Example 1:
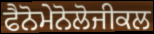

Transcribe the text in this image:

ਫੈਨੋਮੇਨੋਲੋਜੀਕਲ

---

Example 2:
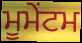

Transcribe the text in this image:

ਮੂਮੇਂਟਮ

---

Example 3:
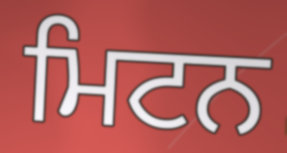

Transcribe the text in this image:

ਮਿਟਨ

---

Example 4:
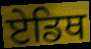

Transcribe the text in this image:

ਏਡਿਥ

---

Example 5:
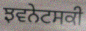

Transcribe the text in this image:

ਝਵਨੇਟਸਕੀ